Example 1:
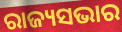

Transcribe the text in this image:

ରାଜ୍ୟସଭାର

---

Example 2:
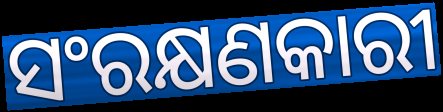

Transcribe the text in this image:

ସଂରକ୍ଷଣକାରୀ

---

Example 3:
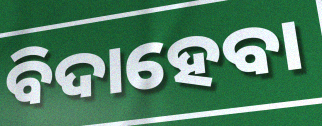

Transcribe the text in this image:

ବିଦାହେବା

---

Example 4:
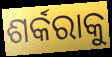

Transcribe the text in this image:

ଶର୍କରାକୁ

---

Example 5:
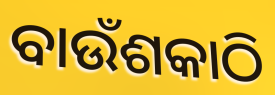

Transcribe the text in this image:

ବାଉଁଶକାଠି